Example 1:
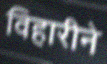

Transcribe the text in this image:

विहारीने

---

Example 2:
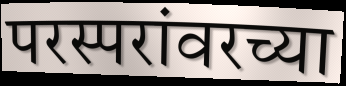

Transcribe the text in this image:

परस्परांवरच्या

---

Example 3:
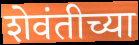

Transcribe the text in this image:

शेवंतीच्या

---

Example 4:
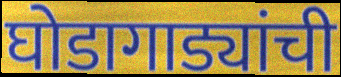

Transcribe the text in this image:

घोडागाड्यांची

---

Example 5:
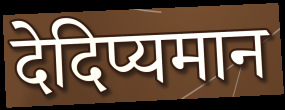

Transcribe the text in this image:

देदिप्यमान